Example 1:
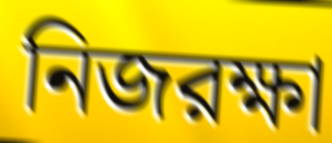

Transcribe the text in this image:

নিজরক্ষা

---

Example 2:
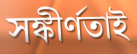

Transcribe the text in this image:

সঙ্কীর্ণতাই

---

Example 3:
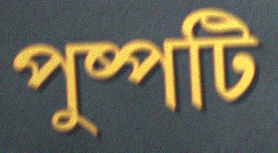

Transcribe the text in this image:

পুষ্পটি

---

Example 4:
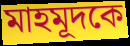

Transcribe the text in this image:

মাহমূদকে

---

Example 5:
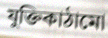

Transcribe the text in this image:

যুক্তিকাঠামো